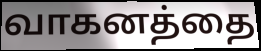
வாகனத்தை